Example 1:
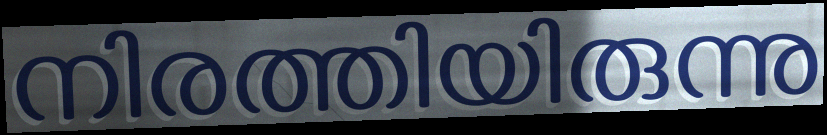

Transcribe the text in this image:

നിരത്തിയിരുന്നു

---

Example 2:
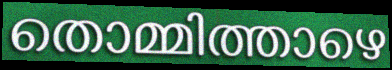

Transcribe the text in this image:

തൊമ്മിത്താഴെ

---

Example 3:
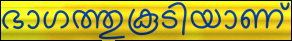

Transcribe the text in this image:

ഭാഗത്തുകൂടിയാണ്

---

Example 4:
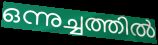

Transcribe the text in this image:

ഒന്നുച്ചത്തിൽ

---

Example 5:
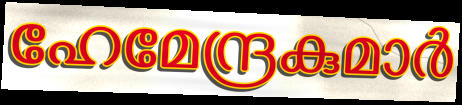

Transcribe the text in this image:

ഹേമേന്ദ്രകുമാർ